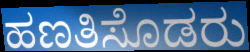
ಹಣತಿಸೊಡರು